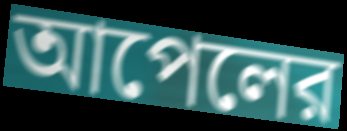
আপেলের